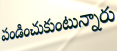
పండించుకుంటున్నారు